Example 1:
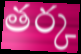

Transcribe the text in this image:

తర్క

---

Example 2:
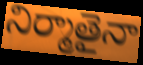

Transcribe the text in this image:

నిర్మాతైనా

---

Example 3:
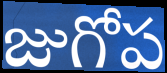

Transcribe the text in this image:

జుగోప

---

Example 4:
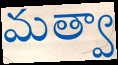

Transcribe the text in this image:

మత్వా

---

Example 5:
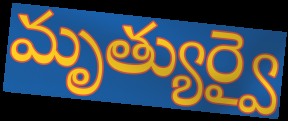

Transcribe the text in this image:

మృత్యుర్వై